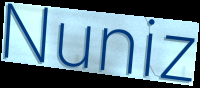
Nuniz